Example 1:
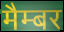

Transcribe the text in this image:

मैम्बर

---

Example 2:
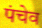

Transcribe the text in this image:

पंचेव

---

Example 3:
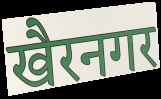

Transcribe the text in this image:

खैरनगर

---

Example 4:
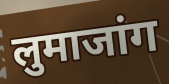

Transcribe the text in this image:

लुमाजांग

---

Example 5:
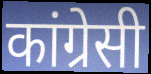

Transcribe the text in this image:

कांग्रेसी